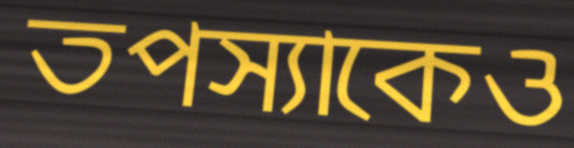
তপস্যাকেও